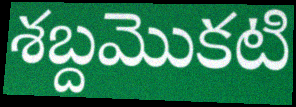
శబ్దమొకటి